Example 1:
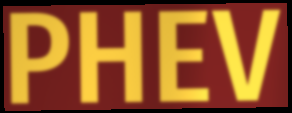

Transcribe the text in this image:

PHEV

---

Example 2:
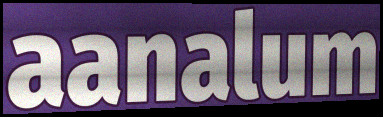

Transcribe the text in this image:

aanalum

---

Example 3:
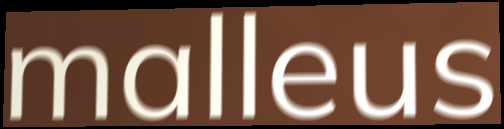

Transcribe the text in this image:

malleus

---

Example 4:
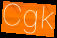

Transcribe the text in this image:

Cgk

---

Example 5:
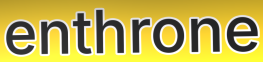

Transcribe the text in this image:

enthrone